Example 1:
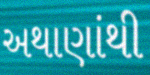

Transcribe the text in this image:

અથાણાંથી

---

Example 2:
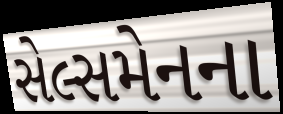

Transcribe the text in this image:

સેલ્સમેનના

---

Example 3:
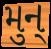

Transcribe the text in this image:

મુન્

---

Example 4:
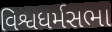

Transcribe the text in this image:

વિશ્વધર્મસભા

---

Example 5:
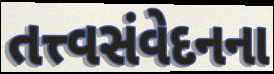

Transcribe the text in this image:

તત્ત્વસંવેદનના